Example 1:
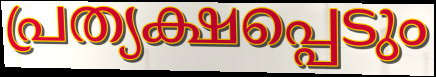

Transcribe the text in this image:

പ്രത്യക്ഷപ്പെടും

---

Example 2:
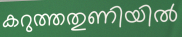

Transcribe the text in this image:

കറുത്തതുണിയിൽ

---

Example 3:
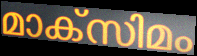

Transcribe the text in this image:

മാക്‌സിമം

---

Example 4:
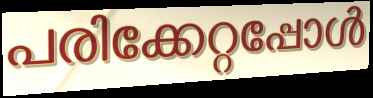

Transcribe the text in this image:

പരിക്കേറ്റപ്പോൾ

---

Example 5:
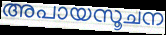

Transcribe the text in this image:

അപായസൂചന